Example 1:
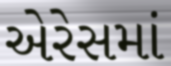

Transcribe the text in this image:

એરેસમાં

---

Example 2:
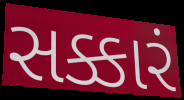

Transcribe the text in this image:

સક્કારં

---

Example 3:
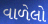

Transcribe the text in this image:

વાળેલો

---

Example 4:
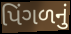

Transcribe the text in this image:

પિંગળનું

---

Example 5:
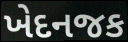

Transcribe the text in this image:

ખેદનજક